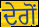
ਦੇਗੋਂ